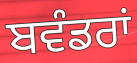
ਬਵੰਡਰਾਂ